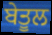
ਬੇਤੂਲ